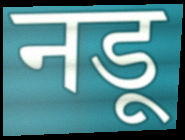
नडू